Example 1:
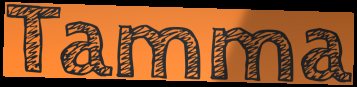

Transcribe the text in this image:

Tamma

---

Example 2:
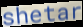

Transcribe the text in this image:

shetar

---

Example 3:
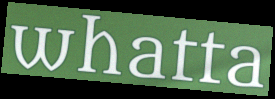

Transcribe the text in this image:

whatta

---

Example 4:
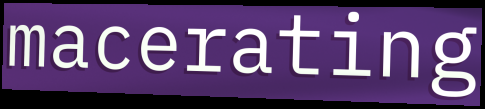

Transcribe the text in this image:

macerating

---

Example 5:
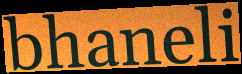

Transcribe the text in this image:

bhaneli